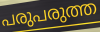
പരുപരുത്ത